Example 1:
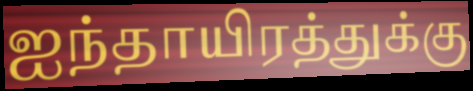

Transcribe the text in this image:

ஐந்தாயிரத்துக்கு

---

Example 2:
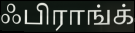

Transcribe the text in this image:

ஃபிராங்க்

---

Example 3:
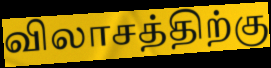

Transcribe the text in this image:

விலாசத்திற்கு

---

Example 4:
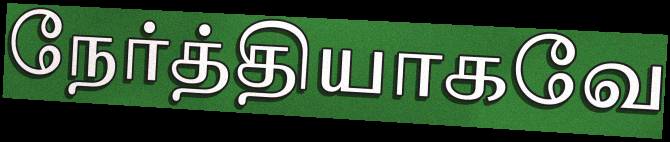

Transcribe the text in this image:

நேர்த்தியாகவே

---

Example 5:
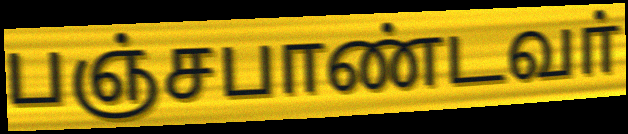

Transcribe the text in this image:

பஞ்சபாண்டவர்